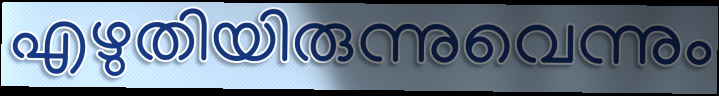
എഴുതിയിരുന്നുവെന്നും